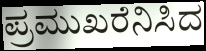
ಪ್ರಮುಖರೆನಿಸಿದ